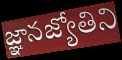
జ్ఞానజ్యోతిని